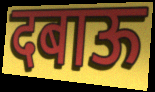
दबाऊ